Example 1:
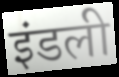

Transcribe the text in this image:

इंडली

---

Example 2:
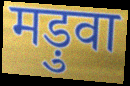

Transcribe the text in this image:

मड़ुवा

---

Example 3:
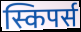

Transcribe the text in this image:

स्किपर्स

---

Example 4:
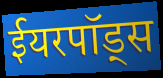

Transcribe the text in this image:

ईयरपॉड्स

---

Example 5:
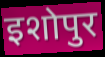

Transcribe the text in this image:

इशोपुर